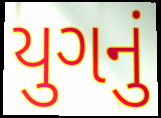
યુગનું